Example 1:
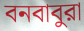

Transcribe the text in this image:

বনবাবুরা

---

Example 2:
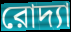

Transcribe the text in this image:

রোদ্যা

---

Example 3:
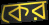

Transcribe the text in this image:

কের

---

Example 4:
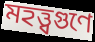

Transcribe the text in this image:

মহত্ত্বগুণে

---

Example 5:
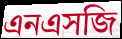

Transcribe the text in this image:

এনএসজি